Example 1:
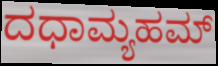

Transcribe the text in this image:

ದಧಾಮ್ಯಹಮ್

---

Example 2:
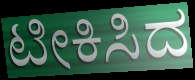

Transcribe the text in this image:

ಟೀಕಿಸಿದ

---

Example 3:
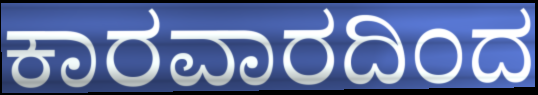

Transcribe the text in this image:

ಕಾರವಾರದಿಂದ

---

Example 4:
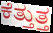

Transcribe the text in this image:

ಕೆತ್ತುತ್ತ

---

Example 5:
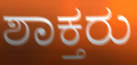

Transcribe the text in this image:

ಶಾಕ್ತರು